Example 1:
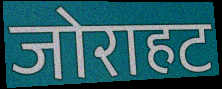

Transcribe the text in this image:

जोराहट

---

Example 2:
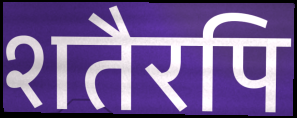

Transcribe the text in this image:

शतैरपि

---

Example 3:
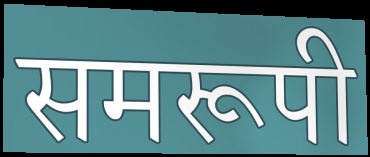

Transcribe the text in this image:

समरूपी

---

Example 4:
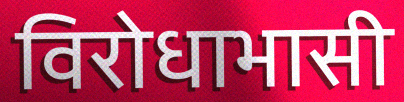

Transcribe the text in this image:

विरोधाभासी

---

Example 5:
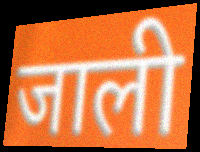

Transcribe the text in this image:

जाली